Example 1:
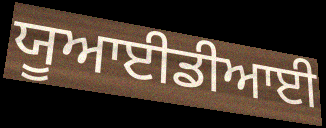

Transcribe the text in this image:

ਯੂਆਈਡੀਆਈ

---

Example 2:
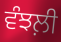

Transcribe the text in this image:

ਵੰਝਲ਼ੀ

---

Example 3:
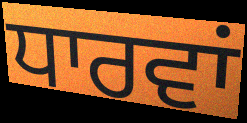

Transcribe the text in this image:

ਧਾਰਵਾਂ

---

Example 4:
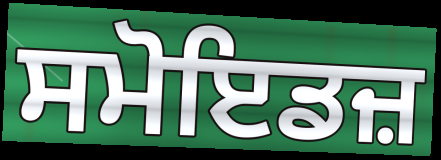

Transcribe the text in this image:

ਸਮੋਇਡਜ਼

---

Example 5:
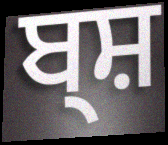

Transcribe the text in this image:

ਬ੍ਸ਼